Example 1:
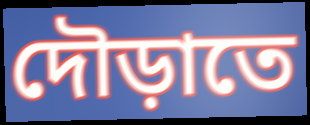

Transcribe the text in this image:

দৌড়াতে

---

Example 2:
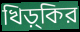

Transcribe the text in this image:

খিড়্‌কির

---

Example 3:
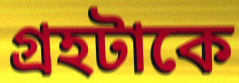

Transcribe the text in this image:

গ্রহটাকে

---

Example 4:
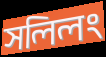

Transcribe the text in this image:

সলিলং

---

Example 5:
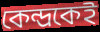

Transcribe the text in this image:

কেন্দ্রকেই